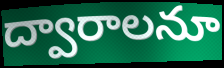
ద్వారాలనూ